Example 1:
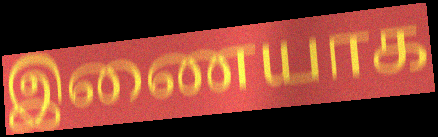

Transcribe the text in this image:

இணையாக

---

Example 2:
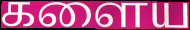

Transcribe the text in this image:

களைய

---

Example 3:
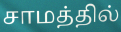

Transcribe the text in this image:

சாமத்தில்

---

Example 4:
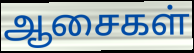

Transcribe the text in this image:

ஆசைகள்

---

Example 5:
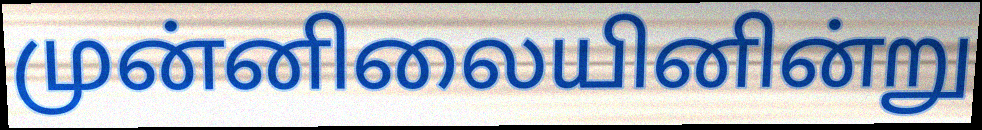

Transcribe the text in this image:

முன்னிலையினின்று